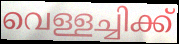
വെള്ളച്ചിക്ക്